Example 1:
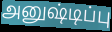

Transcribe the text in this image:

அனுஷ்டிப்பு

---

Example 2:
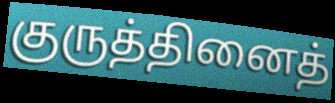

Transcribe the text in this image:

குருத்தினைத்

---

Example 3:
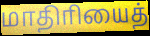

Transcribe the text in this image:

மாதிரியைத்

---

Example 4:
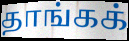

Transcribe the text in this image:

தாங்கக்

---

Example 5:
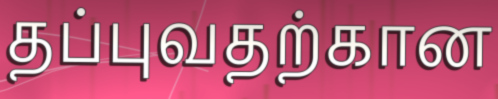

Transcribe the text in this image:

தப்புவதற்கான